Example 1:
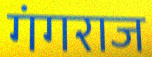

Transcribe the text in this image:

गंगराज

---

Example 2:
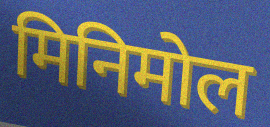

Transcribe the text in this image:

मिनिमोल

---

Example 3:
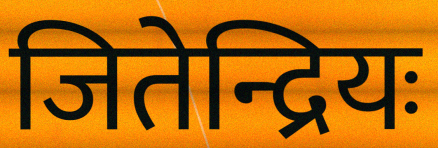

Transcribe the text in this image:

जितेन्द्रियः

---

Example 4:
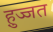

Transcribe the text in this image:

ह़ुज्जत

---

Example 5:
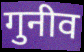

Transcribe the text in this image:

गुनीव